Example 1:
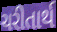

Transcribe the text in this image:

ચરીતાર્થ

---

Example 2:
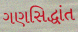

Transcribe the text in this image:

ગણસિદ્ધાંત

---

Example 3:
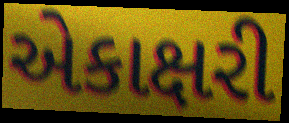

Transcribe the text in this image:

એકાક્ષરી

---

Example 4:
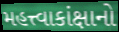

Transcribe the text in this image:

મહત્ત્વાકાંક્ષાનો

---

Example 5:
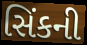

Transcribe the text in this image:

સિંકની